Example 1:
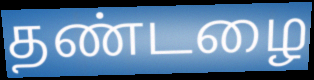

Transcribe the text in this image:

தண்டழை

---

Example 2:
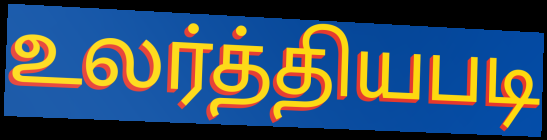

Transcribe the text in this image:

உலர்த்தியபடி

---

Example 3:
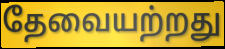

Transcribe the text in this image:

தேவையற்றது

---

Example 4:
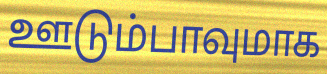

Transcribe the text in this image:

ஊடும்பாவுமாக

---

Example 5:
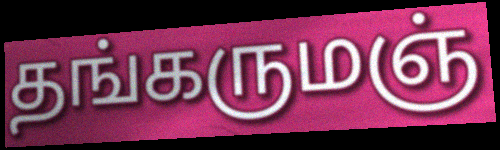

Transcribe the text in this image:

தங்கருமஞ்